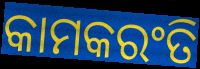
କାମକରଂତି